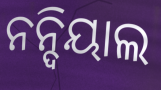
ନନ୍ଦିୟାଲ